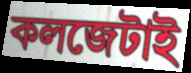
কলজেটাই